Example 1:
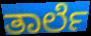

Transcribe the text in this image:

ತಾರ್ಲೆ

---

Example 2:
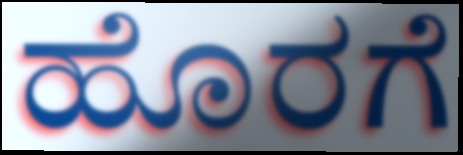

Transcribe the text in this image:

ಹೊರಗೆ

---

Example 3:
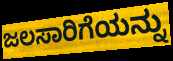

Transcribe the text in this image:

ಜಲಸಾರಿಗೆಯನ್ನು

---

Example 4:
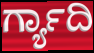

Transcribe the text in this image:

ರ್ಗ್ಯಾದಿ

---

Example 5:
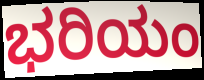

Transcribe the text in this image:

ಭರಿಯಂ